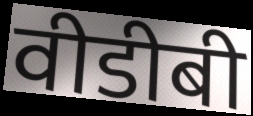
वीडीबी